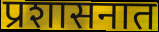
प्रशासनात